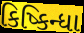
કિષ્કિન્ધા